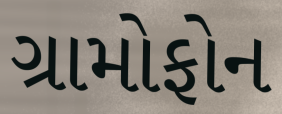
ગ્રામોફોન